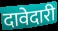
दावेदारी